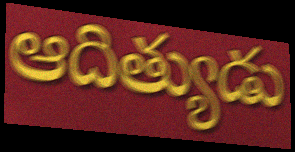
ఆదిత్యుడు